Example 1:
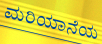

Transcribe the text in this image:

ಮರಿಯಾನೆಯ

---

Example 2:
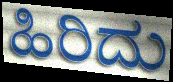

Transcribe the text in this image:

ಹಿರಿದು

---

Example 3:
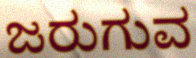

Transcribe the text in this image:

ಜರುಗುವ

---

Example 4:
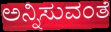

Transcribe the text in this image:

ಅನ್ನಿಸುವಂತೆ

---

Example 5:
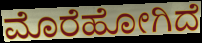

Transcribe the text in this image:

ಮೊರೆಹೋಗಿದೆ